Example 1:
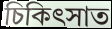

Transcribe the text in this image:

চিকিৎসাত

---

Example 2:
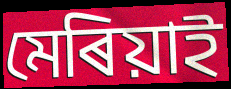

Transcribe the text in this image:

মেৰিয়াই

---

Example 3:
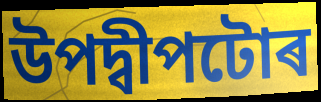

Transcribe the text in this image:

উপদ্বীপটোৰ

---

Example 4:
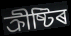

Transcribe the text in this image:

ক্ৰীষ্টিৰ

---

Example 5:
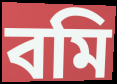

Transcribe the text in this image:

বমি